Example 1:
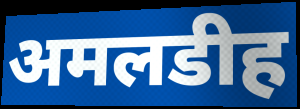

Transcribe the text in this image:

अमलडीह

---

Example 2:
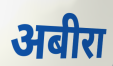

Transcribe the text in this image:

अबीरा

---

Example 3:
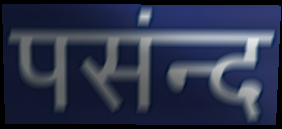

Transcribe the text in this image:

पसंन्द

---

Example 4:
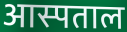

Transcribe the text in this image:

आस्पताल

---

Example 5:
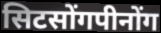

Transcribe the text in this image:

सिटसोंगपीनोंग